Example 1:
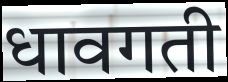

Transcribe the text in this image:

धावगती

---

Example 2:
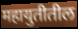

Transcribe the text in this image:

महायुतीतील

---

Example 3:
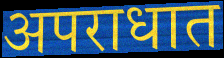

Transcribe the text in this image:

अपराधात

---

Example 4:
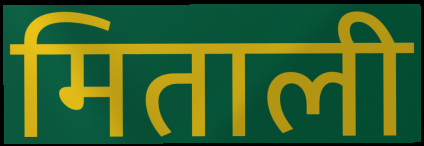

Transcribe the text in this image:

मिताली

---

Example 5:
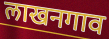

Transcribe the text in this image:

लाखनगाव